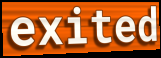
exited